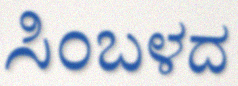
ಸಿಂಬಳದ